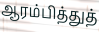
ஆரம்பித்துத்